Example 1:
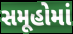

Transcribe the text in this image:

સમૂહોમાં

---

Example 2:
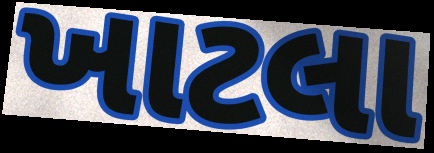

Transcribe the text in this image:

ખાટલા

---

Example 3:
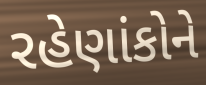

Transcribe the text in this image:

રહેણાંકોને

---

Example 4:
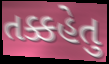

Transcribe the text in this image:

તક્કહેતુ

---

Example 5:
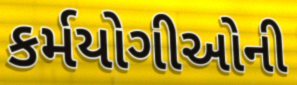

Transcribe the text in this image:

કર્મયોગીઓની